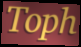
Toph